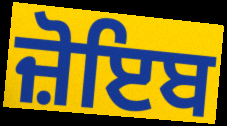
ਜ਼ੋਇਬ